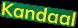
Kandaal